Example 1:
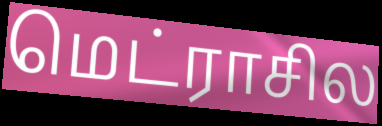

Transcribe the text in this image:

மெட்ராசில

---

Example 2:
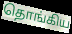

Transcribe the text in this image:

தொங்கிய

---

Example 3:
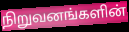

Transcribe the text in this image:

நிறுவனங்களின்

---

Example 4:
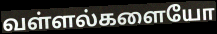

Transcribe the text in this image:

வள்ளல்களையோ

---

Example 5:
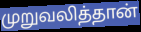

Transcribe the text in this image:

முறுவலித்தான்